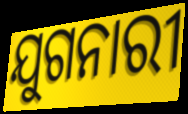
ଯୁଗନାରୀ